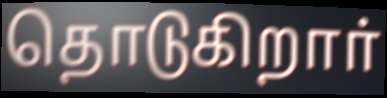
தொடுகிறார்